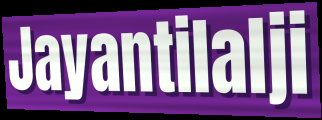
Jayantilalji